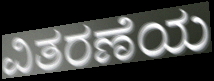
ವಿತರಣೆಯ